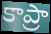
కాప్రా